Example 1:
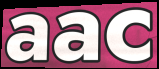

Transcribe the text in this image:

aac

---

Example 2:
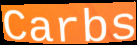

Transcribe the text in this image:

Carbs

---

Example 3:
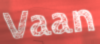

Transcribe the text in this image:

Vaan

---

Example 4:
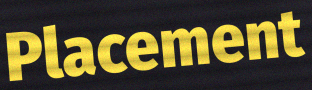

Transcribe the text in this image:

Placement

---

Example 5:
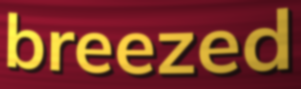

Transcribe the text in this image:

breezed